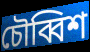
চৌব্বিশ